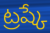
ట్రష్కే